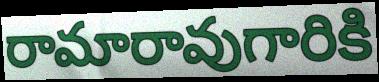
రామారావుగారికి